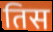
तिस